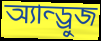
অ্যান্ড্রুজ